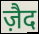
ज़ैद